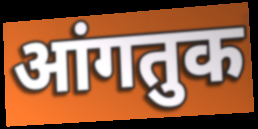
आंगतुक